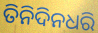
ତିନିଦିନଧରି